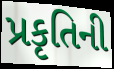
પ્રકૃતિની